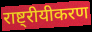
राष्ट्रीयीकरण